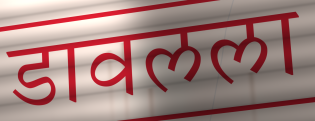
डावलला